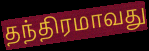
தந்திரமாவது